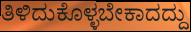
ತಿಳಿದುಕೊಳ್ಳಬೇಕಾದದ್ದು